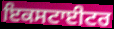
ਇਕਸਟਾਈਟਰ